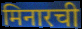
मिनारची